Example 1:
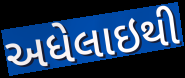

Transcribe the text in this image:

અધેલાઇથી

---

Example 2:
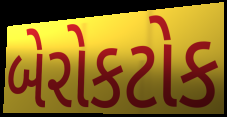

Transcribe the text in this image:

બેરોકટોક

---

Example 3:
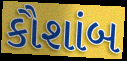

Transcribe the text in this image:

કૌશાંબ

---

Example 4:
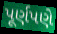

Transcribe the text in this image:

પૂર્ણપણે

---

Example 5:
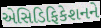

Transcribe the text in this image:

એસિડિફિકેશનને